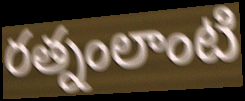
రత్నంలాంటి